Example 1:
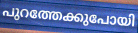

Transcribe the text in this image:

പുറത്തേക്കുപോയി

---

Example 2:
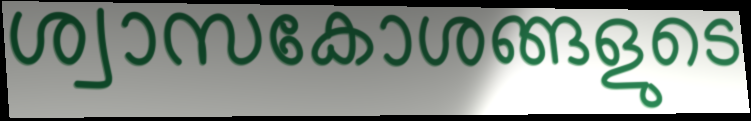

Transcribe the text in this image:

ശ്വാസകോശങ്ങളുടെ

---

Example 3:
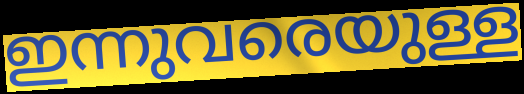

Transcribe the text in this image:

ഇന്നുവരെയുള്ള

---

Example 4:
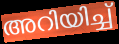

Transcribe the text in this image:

അറിയിച്ച്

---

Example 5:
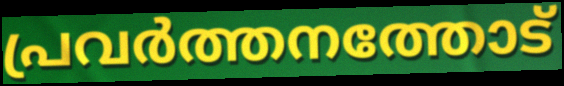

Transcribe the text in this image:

പ്രവർത്തനത്തോട്